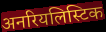
अनरियलिस्टिक